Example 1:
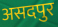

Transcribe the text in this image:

असदपुर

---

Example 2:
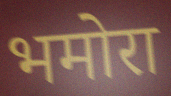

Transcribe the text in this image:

भमोरा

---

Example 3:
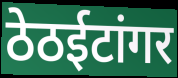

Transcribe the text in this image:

ठेठईटांगर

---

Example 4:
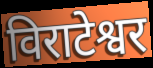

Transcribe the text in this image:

विराटेश्वर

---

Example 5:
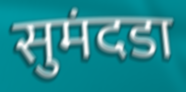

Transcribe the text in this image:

सुमंदडा